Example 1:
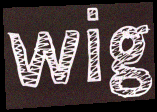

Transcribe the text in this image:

wig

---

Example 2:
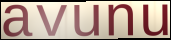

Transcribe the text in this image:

avunu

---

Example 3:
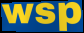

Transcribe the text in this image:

wsp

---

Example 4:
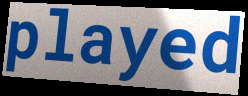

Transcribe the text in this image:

played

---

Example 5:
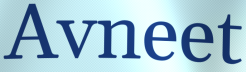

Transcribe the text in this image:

Avneet